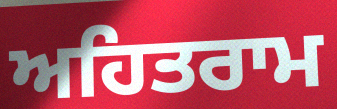
ਅਹਿਤਰਾਮ